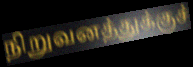
நிறுவனத்துக்குச்